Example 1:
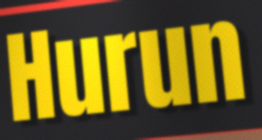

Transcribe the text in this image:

Hurun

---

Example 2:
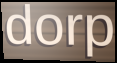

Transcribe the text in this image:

dorp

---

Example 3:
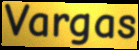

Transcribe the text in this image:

Vargas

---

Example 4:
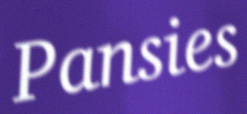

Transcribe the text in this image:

Pansies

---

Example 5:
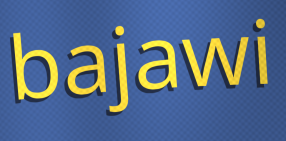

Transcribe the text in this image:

bajawi